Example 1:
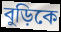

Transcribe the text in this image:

বুড়িকে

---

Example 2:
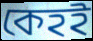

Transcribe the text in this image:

কেহই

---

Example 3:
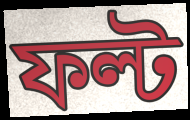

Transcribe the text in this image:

ফল্ট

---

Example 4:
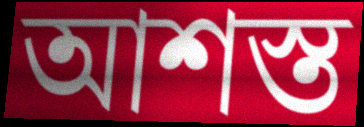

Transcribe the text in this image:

আশস্ত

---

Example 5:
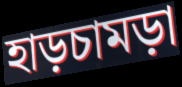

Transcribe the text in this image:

হাড়চামড়া